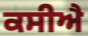
ਕਸੀਐ